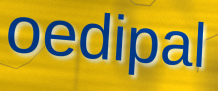
oedipal